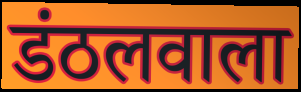
डंठलवाला